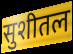
सुशीतल